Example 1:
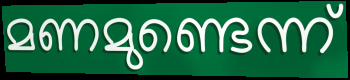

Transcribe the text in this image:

മണമുണ്ടെന്ന്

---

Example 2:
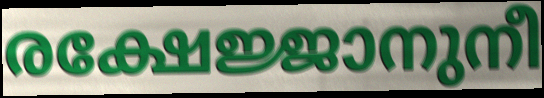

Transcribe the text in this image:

രക്ഷേജ്ജാനുനീ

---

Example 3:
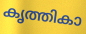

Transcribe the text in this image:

കൃത്തികാ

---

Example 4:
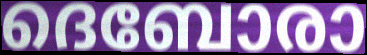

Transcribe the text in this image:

ദെബോരാ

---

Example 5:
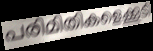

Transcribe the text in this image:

പരിമിതികളെക്കൂടി